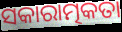
ସକାରାତ୍ମକତା